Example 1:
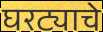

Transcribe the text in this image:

घरट्याचे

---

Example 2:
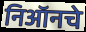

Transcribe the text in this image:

निऑनचे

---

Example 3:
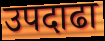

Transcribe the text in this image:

उपदाढा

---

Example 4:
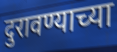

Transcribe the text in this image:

दुरावण्याच्या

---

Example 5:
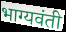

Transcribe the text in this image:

भाग्यवंती